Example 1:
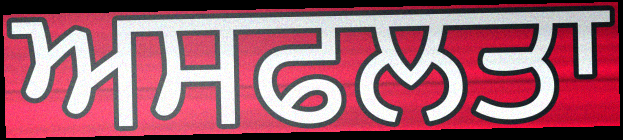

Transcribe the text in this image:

ਅਸਫਲਤਾ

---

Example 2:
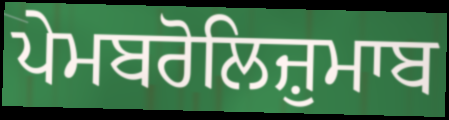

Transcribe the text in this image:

ਪੇਮਬਰੋਲਿਜ਼ੁਮਾਬ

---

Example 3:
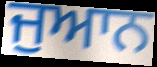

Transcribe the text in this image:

ਜੁਆਨ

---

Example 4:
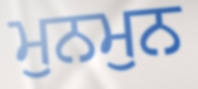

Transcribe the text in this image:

ਮੁਨਮੁਨ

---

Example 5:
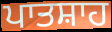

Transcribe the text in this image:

ਪਾਤਸ਼ਾਹ